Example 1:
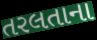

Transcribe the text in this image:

તરલતાના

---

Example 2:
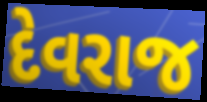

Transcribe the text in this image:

દેવરાજ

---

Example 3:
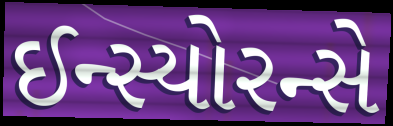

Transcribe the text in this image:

ઈન્સ્યોરન્સે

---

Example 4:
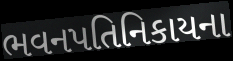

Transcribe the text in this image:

ભવનપતિનિકાયના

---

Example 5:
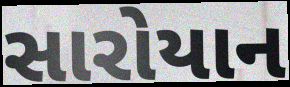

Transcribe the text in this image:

સારોયાન